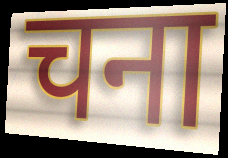
चना